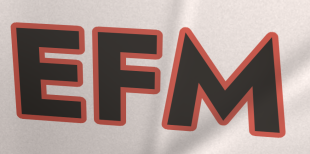
EFM